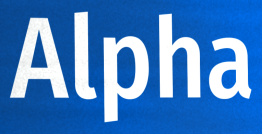
Alpha